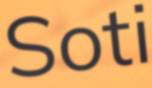
Soti